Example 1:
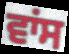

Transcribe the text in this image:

ਵਾਂਸ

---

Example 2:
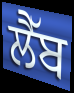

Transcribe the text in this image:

ਲੈੱਬ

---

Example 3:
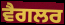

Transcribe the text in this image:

ਵੈਗਲਰ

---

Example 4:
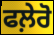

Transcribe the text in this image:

ਫਲ਼ੇਰੋ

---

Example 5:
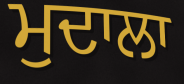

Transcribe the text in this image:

ਮੁਦਾਲਾ